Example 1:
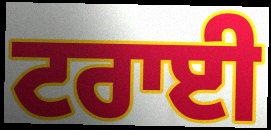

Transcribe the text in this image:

ਟਰਾਈ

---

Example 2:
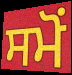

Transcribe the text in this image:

ਸਮੋਂ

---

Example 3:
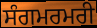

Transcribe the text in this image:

ਸੰਗਮਰਮਰੀ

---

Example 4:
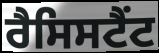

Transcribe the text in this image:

ਰੈਸਿਸਟੈਂਟ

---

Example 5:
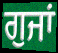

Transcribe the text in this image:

ਗੁਜਾਂ